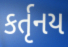
કર્તૃનય